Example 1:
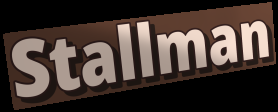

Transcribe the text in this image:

Stallman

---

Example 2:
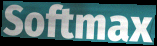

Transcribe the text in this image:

Softmax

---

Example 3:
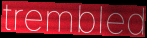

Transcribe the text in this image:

trembled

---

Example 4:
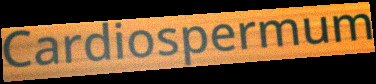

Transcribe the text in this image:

Cardiospermum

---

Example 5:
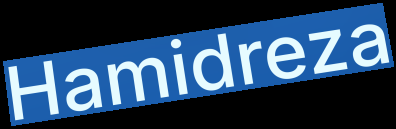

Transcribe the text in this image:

Hamidreza